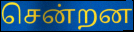
சென்றன